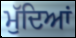
ਮੁੱਦਿਆਂ